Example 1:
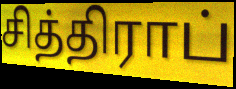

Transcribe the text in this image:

சித்திராப்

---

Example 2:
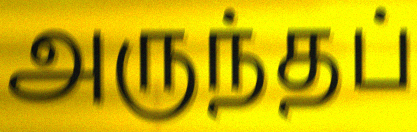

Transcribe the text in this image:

அருந்தப்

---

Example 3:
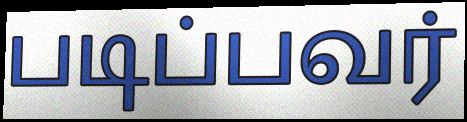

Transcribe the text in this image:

படிப்பவர்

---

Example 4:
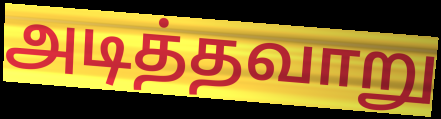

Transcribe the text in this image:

அடித்தவாறு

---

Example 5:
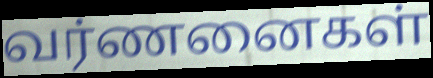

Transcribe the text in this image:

வர்ணனைகள்